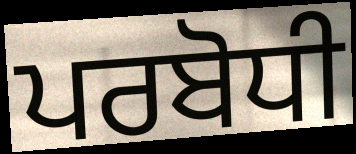
ਪਰਬੋਧੀ